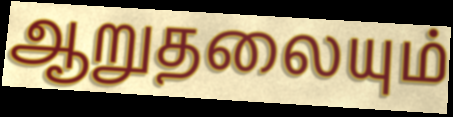
ஆறுதலையும்